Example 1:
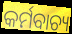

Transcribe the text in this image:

କର୍ମବାଚ୍ୟ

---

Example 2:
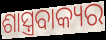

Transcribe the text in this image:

ଶାସ୍ତ୍ରବାକ୍ୟର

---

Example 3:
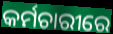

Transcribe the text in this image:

କର୍ମଚାରୀରେ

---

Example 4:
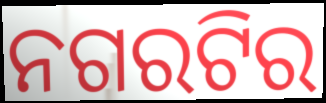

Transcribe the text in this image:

ନଗରଟିର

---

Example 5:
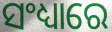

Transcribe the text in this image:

ସଂଧ୍ୟାରେ